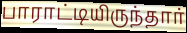
பாராட்டியிருந்தார்